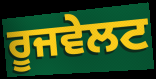
ਰੂਜਵੇਲਟ